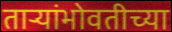
ताऱ्यांभोवतीच्या